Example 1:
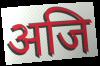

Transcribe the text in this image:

अजि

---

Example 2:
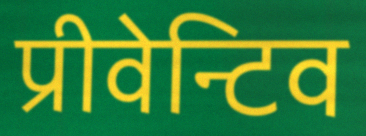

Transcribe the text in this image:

प्रीवेन्टिव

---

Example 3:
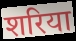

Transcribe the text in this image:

शरिया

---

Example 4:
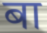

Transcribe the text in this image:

बा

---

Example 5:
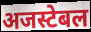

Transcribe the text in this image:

अजस्टेबल